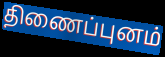
திணைப்புனம்